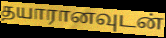
தயாரானவுடன்